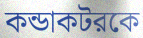
কন্ডাকটরকে